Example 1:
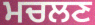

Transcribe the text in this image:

ਮਚਲਣ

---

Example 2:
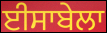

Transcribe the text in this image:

ਈਸਾਬੇਲਾ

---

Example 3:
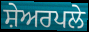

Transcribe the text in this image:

ਸ਼ੇਅਰਪਲੇ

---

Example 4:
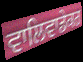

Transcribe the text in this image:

ਵਾਲਿਵਾਡੇਕਰ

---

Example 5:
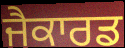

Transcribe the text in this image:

ਜੈਕਾਰਡ